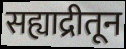
सह्याद्रीतून